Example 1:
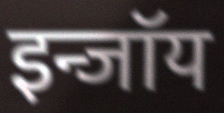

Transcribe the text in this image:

इन्जॉय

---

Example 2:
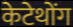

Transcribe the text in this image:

केटेथोंग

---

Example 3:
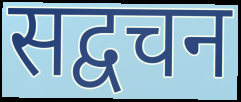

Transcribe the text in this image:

सद्वचन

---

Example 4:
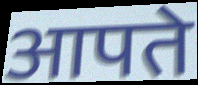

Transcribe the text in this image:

आपते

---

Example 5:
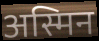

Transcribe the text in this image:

अस्मिन